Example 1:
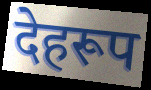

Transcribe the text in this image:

देहरूप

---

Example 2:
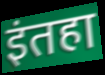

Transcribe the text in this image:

इंतहा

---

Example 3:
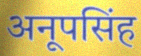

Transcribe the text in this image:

अनूपसिंह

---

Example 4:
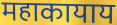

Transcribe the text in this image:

महाकायाय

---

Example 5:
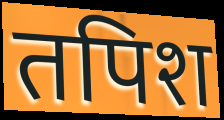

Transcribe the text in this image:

तपिश